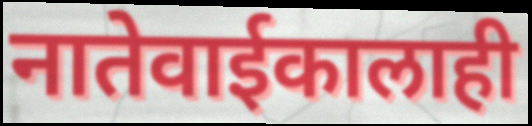
नातेवाईकालाही